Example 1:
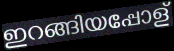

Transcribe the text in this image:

ഇറങ്ങിയപ്പോള്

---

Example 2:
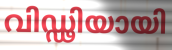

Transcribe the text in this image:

വിഡ്ഢിയായി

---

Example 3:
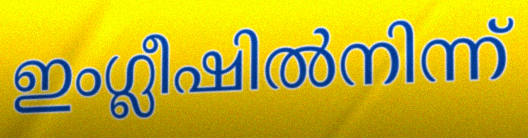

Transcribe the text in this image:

ഇംഗ്ലീഷിൽനിന്ന്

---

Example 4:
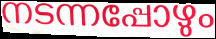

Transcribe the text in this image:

നടന്നപ്പോഴും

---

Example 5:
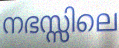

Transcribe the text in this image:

നഭസ്സിലെ